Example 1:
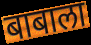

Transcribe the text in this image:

बाबाला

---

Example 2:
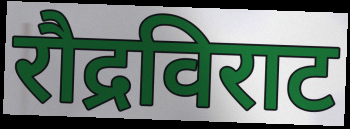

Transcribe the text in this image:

रौद्रविराट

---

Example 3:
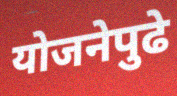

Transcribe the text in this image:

योजनेपुढे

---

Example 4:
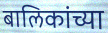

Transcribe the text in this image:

बालिकांच्या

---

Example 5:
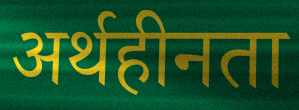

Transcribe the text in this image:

अर्थहीनता